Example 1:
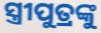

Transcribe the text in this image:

ସ୍ତ୍ରୀପୁତ୍ରଙ୍କୁ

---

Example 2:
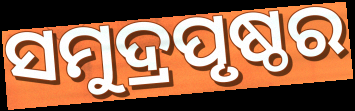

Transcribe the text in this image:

ସମୁଦ୍ରପୃଷ୍ଠର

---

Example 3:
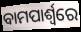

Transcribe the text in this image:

ବାମପାର୍ଶ୍ଵରେ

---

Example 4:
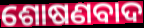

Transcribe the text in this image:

ଶୋଷଣବାଦ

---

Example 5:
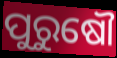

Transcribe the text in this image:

ପୁରୁଷୌ